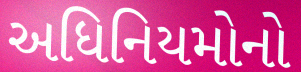
અધિનિયમોનો